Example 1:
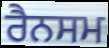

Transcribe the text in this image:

ਰੈਨਸਮ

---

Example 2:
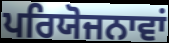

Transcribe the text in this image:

ਪਰਿਯੋਜਨਾਵਾਂ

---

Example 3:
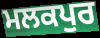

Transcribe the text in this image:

ਮਲਕਪੁਰ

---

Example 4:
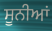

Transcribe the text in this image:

ਸੂਨੀਆਂ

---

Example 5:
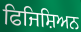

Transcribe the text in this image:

ਫਿਜਿਸ਼ਿਅਨ